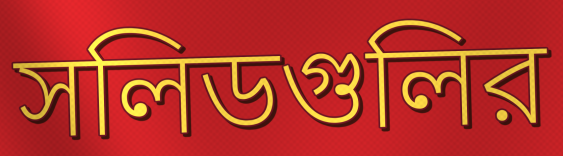
সলিডগুলির